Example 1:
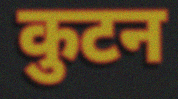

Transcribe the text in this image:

कुटन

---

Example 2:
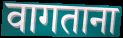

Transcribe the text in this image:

वागताना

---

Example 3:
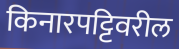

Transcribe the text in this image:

किनारपट्टिवरील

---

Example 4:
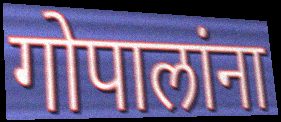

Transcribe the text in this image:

गोपालांना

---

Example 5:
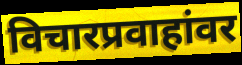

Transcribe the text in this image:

विचारप्रवाहांवर